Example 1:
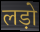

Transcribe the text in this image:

लड़ो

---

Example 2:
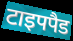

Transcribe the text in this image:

टाइपपैड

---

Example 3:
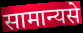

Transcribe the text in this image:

सामान्यसे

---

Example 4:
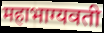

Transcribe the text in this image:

महाभाग्यवती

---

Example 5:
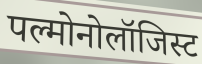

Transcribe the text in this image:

पल्मोनोलॉजिस्ट